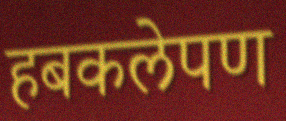
हबकलेपण